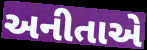
અનીતાએ